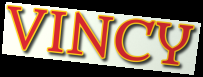
VINCY